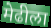
मेढीला